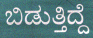
ಬಿಡುತ್ತಿದ್ದೆ